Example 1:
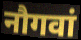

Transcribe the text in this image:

नौगवां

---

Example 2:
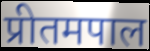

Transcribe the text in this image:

प्रीतमपाल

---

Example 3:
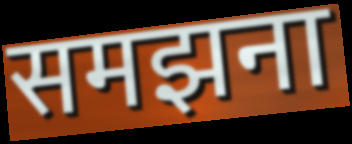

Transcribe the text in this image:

समझना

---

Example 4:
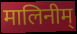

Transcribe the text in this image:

मालिनीम्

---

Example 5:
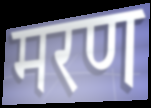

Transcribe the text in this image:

मरण